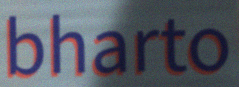
bharto